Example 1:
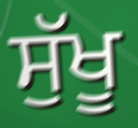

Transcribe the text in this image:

ਸੁੱਖੂ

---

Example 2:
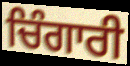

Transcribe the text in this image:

ਚਿੰਗਾਰੀ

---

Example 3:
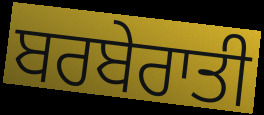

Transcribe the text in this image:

ਬਰਬੇਰਾਤੀ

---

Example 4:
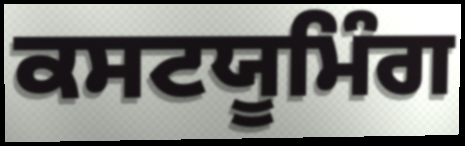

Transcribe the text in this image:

ਕਸਟਯੂਮਿੰਗ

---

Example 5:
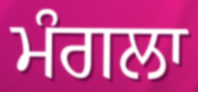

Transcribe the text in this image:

ਮੰਗਲਾ